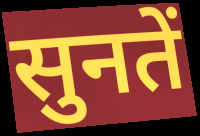
सुनतें